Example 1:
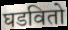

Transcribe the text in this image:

घडवितो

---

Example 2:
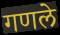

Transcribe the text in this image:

गणले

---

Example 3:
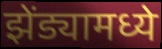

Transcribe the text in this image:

झेंड्यामध्ये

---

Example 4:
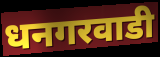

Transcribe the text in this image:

धनगरवाडी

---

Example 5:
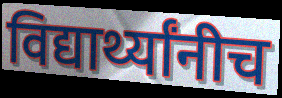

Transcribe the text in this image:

विद्यार्थ्यांनीच